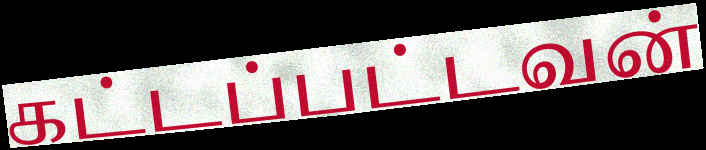
கட்டப்பட்டவன்